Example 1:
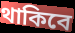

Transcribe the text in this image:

থাকিবে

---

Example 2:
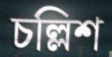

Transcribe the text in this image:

চল্লিশ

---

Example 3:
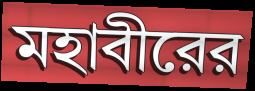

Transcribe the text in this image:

মহাবীরের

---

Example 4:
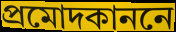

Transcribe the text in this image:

প্রমোদকাননে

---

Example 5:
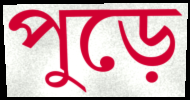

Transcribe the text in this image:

পুড়ে